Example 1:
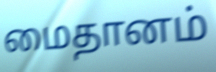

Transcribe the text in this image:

மைதானம்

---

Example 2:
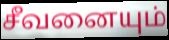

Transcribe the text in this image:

சீவனையும்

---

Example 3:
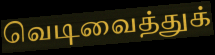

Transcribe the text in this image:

வெடிவைத்துக்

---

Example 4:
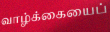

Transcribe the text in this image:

வாழ்க்கையைப்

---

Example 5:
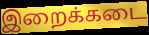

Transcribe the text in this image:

இறைக்கடை